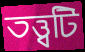
তত্ত্বটি